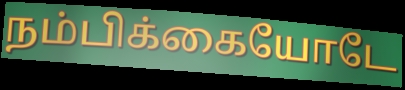
நம்பிக்கையோடே